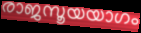
രാജസൂയയാഗം